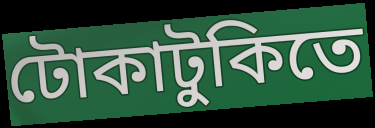
টোকাটুকিতে